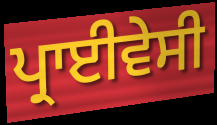
ਪ੍ਰਾਈਵੇਸੀ